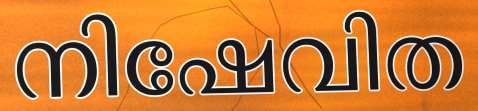
നിഷേവിത